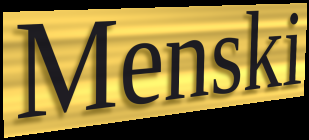
Menski